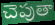
చెపుతా